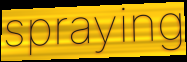
spraying